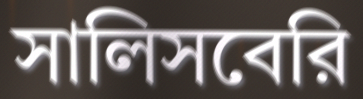
সালিসবেরি